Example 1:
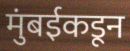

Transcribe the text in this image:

मुंबईकडून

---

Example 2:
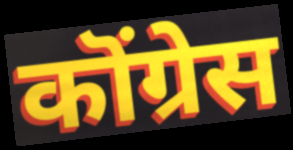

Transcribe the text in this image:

कॊंग्रेस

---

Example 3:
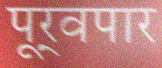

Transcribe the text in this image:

पूर्वपार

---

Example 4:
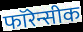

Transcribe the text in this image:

फॉरेन्सीक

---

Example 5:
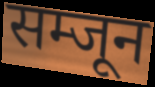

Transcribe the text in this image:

सम्जून